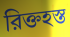
রিক্তহস্ত